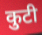
कुटी